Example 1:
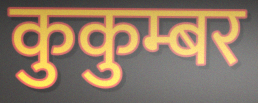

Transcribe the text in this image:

कुकुम्बर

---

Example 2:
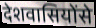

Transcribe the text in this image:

देशवासियोंसे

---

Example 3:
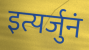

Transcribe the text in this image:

इत्यर्जुनं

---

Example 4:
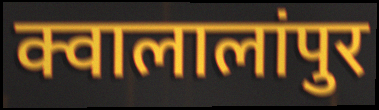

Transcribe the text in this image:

क्वालालांपुर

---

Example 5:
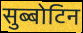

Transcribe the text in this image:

सुब्बोटिन